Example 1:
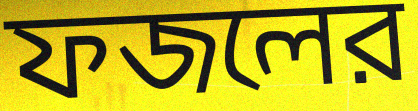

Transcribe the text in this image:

ফজলের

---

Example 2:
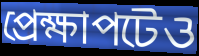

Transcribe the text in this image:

প্রেক্ষাপটেও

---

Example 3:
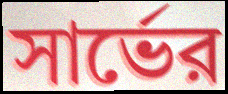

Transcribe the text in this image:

সার্ভের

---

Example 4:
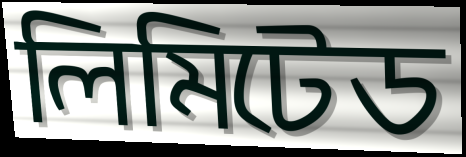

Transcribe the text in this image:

লিমিটেড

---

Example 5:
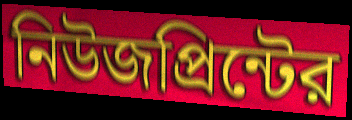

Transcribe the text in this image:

নিউজপ্রিন্টের